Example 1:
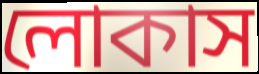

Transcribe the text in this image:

লোকাস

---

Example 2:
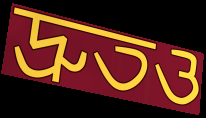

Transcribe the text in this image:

দ্রুতও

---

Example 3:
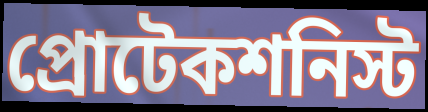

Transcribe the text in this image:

প্রোটেকশনিস্ট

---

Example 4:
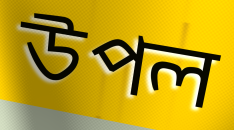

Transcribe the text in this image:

উপল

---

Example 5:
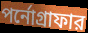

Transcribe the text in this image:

পর্নোগ্রাফার